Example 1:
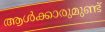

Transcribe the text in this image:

ആൾക്കാരുമുണ്ട്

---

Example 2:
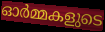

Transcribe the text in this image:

ഓർമ്മകളുടെ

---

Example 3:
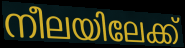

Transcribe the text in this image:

നീലയിലേക്ക്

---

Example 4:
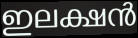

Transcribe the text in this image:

ഇലക്ഷൻ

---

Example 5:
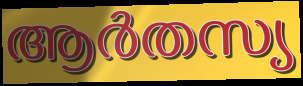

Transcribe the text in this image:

ആർതസ്യ